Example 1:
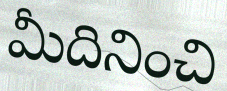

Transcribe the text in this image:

మీదినించి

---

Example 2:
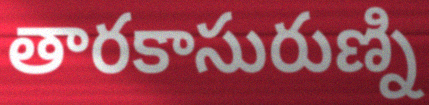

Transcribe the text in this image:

తారకాసురుణ్ని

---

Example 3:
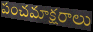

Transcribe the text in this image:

పంచమాక్షరాలు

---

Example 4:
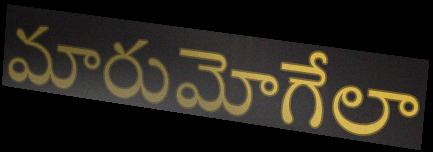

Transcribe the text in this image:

మారుమోగేలా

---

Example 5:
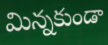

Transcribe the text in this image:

మిన్నకుండా